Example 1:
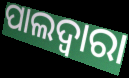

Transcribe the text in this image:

ପାଲଦ୍ୱାରା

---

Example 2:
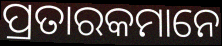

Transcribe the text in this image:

ପ୍ରତାରକମାନେ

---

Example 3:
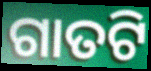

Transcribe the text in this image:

ଗାତଟି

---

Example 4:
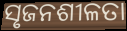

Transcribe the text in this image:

ସୃଜନଶୀଳତା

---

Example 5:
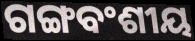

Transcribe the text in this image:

ଗଙ୍ଗବଂଶୀୟ